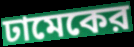
ঢামেকের